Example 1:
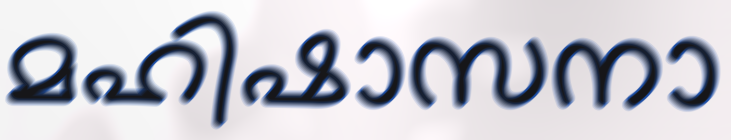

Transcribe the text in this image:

മഹിഷാസനാ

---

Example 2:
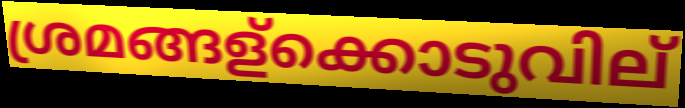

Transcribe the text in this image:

ശ്രമങ്ങള്ക്കൊടുവില്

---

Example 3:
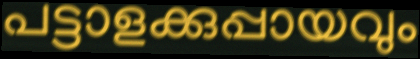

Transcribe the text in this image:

പട്ടാളക്കുപ്പായവും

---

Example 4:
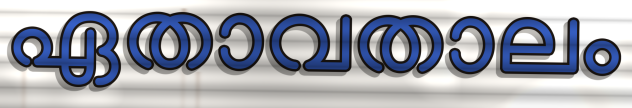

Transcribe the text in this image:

ഏതാവതാലം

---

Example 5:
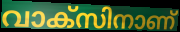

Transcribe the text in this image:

വാക്സിനാണ്